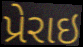
પ્રેરાઇ